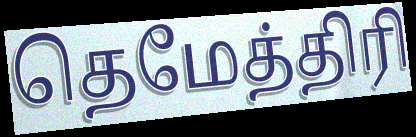
தெமேத்திரி